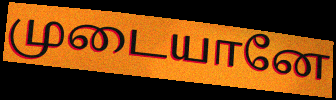
முடையானே